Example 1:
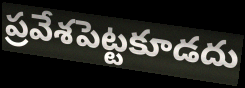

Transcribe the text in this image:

ప్రవేశపెట్టకూడదు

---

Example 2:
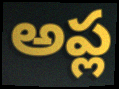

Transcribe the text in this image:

అప్ల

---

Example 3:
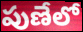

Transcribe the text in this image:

పుణేలో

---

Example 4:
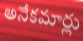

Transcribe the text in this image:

అనేకమార్లు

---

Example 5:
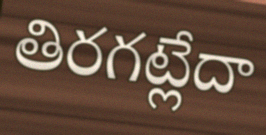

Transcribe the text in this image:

తిరగట్లేదా